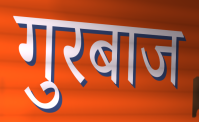
गुरबाज